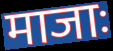
माजाः